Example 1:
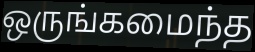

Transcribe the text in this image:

ஒருங்கமைந்த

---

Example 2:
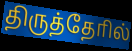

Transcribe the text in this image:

திருத்தேரில்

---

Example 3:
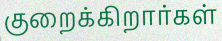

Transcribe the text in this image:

குறைக்கிறார்கள்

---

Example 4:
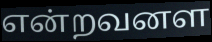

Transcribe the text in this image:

என்றவனள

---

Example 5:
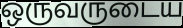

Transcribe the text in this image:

ஒருவருடைய